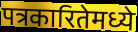
पत्रकारितेमध्ये